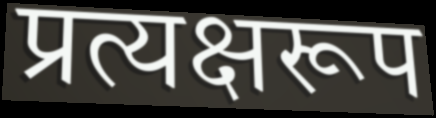
प्रत्यक्षरूप